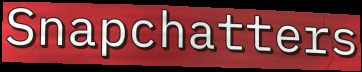
Snapchatters